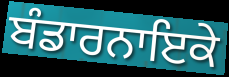
ਬੰਡਾਰਨਾਇਕੇ